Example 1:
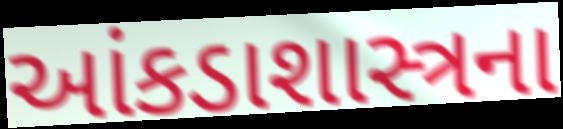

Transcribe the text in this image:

આંકડાશાસ્ત્રના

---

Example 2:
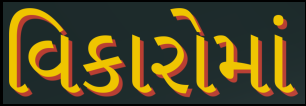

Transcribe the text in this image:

વિકારોમાં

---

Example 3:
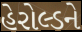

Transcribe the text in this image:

હેરોલ્ડને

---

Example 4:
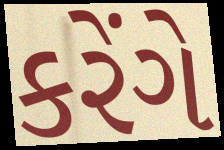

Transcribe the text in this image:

કરેંગે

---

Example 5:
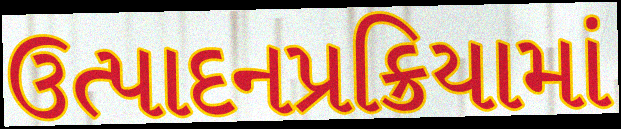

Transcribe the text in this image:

ઉત્પાદનપ્રક્રિયામાં